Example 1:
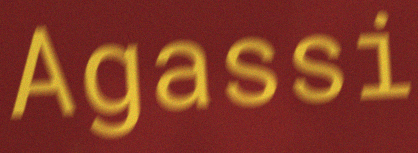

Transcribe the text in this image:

Agassi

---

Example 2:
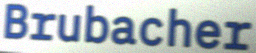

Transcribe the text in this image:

Brubacher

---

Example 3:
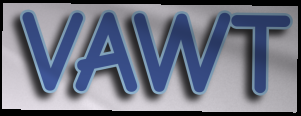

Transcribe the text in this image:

VAWT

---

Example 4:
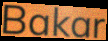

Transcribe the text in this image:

Bakar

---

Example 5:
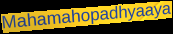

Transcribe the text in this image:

Mahamahopadhyaaya